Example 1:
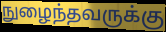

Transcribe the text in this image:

நுழைந்தவருக்கு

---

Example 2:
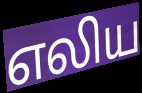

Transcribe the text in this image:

எலிய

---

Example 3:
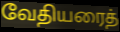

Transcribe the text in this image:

வேதியரைத்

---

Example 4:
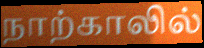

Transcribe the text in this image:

நாற்காலில்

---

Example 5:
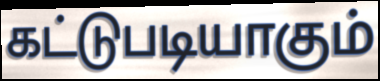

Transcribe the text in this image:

கட்டுபடியாகும்